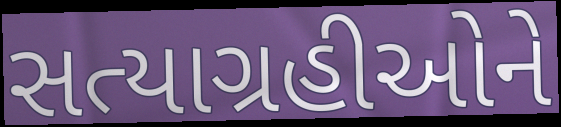
સત્યાગ્રહીઓને